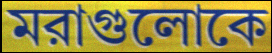
মরাগুলোকে